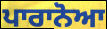
ਪਾਰਾਨੋਆ